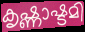
കൃഷ്ണാഷ്ടമി